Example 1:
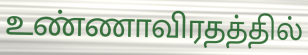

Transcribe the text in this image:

உண்ணாவிரதத்தில்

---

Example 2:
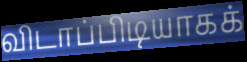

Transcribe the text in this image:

விடாப்பிடியாகக்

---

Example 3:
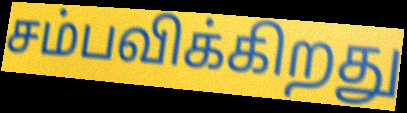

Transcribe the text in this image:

சம்பவிக்கிறது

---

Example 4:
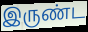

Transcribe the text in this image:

இருண்ட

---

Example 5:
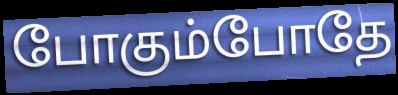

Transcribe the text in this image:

போகும்போதே